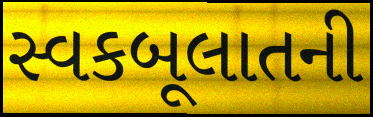
સ્વકબૂલાતની